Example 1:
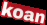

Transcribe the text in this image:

koan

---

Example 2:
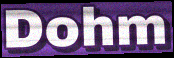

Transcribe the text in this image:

Dohm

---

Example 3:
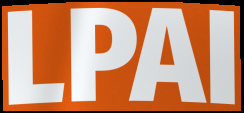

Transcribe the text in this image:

LPAI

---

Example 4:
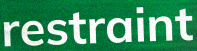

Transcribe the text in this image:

restraint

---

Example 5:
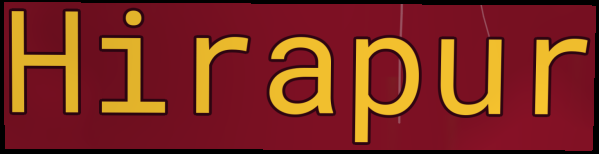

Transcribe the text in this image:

Hirapur